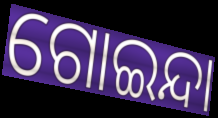
ଗୋଇନ୍ଦା